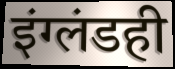
इंग्लंडही